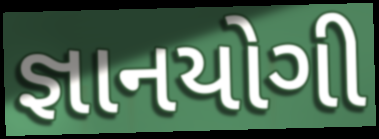
જ્ઞાનયોગી